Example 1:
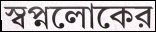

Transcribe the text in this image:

স্বপ্নলোকের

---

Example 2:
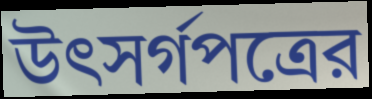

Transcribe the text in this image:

উৎসর্গপত্রের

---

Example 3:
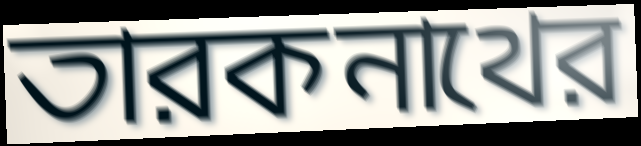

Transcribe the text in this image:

তারকনাথের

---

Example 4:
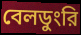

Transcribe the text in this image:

বেলডুংরি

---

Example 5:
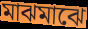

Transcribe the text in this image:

মাঝমাঝে